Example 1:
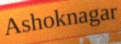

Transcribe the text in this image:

Ashoknagar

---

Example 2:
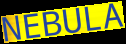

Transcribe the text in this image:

NEBULA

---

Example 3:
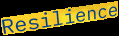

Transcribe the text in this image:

Resilience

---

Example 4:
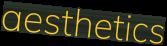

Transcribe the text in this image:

aesthetics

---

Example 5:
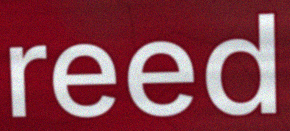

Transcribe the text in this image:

reed